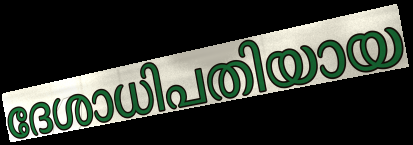
ദേശാധിപതിയായ